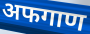
अफगाण